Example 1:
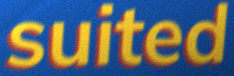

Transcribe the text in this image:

suited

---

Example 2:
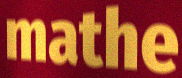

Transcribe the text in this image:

mathe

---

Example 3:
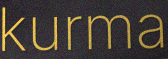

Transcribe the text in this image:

kurma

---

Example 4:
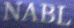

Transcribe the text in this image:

NABL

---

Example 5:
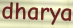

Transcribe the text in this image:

dharya